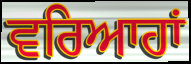
ਵਰਿਆਹਾਂ